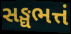
સઙ્ઘભત્તં